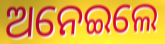
ଅନେଇଲେ